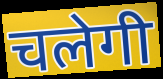
चलेगी